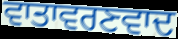
ਵਾਤਾਵਰਣਵਾਦ